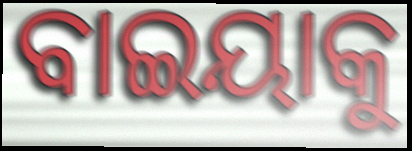
ବାଇୟାକୁ